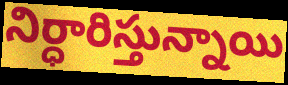
నిర్ధారిస్తున్నాయి